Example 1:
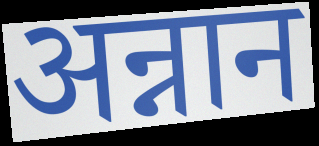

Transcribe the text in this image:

अन्नान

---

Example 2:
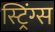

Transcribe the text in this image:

स्ट्रिंग्स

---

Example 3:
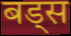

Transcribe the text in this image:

बड्स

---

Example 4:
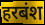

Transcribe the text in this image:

हरबंश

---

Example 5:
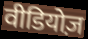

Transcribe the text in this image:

वीडियोज़